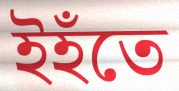
ইহঁতে